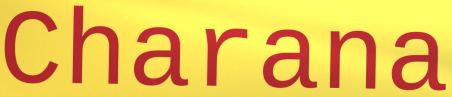
Charana